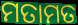
ମତାମତ